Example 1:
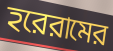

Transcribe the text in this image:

হরেরামের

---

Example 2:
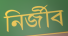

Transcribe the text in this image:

নির্জীব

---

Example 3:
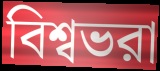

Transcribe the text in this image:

বিশ্বভরা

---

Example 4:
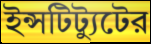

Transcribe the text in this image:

ইন্সটিট্যুটের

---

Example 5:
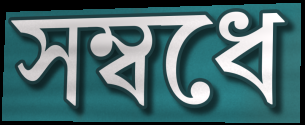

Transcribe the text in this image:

সম্বধে